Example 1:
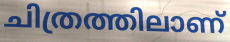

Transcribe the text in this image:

ചിത്രത്തിലാണ്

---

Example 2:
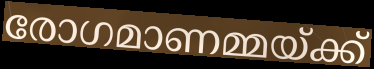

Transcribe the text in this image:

രോഗമാണമ്മയ്ക്ക്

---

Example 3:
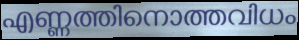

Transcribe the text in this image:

എണ്ണത്തിനൊത്തവിധം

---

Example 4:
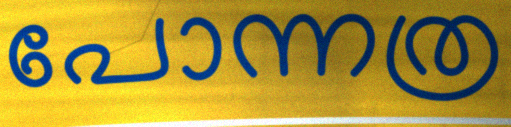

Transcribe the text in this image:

പോന്നത്ര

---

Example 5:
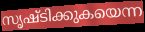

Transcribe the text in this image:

സൃഷ്ടിക്കുകയെന്ന